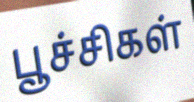
பூச்சிகள்